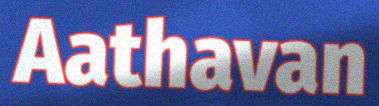
Aathavan